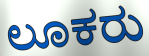
ಲೂಕರು